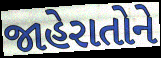
જાહેરાતોને